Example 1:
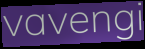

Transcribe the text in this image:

vavengi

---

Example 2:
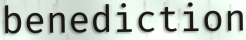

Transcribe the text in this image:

benediction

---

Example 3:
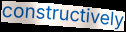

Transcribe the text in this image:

constructively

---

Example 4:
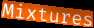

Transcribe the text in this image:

Mixtures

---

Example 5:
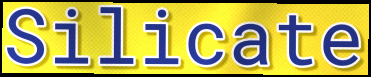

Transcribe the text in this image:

Silicate